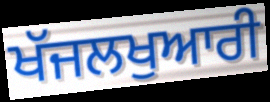
ਖੱਜਲਖੁਆਰੀ